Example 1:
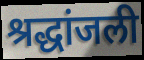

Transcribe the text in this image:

श्रद्धांजली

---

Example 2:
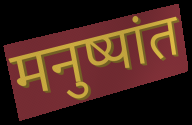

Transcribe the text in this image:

मनुष्यांत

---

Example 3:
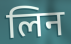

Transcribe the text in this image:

लिन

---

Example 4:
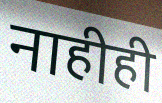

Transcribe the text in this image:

नाहीही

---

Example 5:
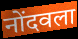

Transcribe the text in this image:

नोंदवला